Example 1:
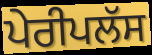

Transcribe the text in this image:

ਪੇਰੀਪਲੱਸ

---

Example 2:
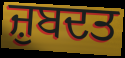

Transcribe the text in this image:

ਜ਼ੁਬਦਤ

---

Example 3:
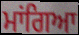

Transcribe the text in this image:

ਮਾਂਗਿਆ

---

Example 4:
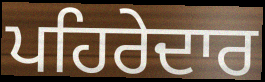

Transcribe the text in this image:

ਪਹਿਰੇਦਾਰ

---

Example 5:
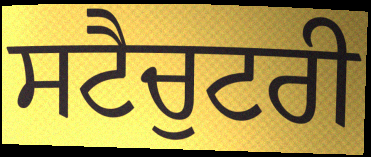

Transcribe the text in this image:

ਸਟੈਚੁਟਰੀ